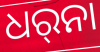
ଧର୍‌ନା